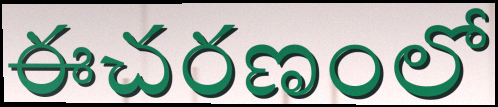
ఈచరణంలో